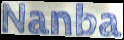
Nanba